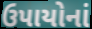
ઉપાયોનાં